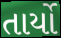
તાર્યો